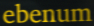
ebenum